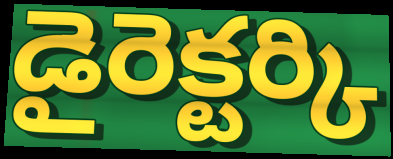
డైరెక్టర్కి